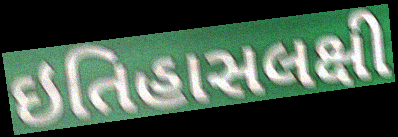
ઇતિહાસલક્ષી